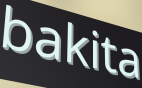
bakita